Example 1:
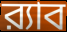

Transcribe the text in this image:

র‍্যাব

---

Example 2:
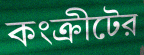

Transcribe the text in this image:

কংক্রীটের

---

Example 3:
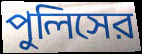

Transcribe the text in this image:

পুলিসের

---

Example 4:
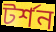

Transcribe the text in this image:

টর্শন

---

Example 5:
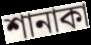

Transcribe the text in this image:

শানাকা